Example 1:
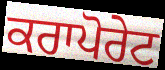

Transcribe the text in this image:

ਕਰਾਪੋਰੇਟ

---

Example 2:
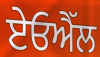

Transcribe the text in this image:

ਏਓਐੱਲ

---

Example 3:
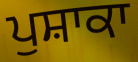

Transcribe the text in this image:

ਪੁਸ਼ਾਕਾ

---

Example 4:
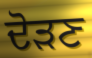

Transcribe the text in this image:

ਦੋੜਣ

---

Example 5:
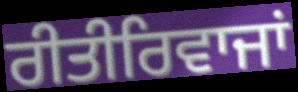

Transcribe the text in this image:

ਰੀਤੀਰਿਵਾਜਾਂ